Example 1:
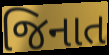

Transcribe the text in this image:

જિનાત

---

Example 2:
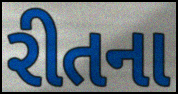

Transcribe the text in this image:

રીતના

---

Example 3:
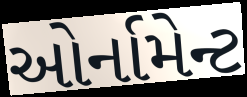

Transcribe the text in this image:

ઓર્નામેન્ટ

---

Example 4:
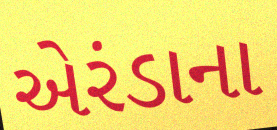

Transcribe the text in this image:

એરંડાના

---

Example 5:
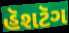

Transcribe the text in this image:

હૅશટૅગ